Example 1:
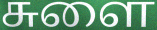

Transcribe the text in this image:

சுளை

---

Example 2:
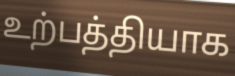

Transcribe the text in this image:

உற்பத்தியாக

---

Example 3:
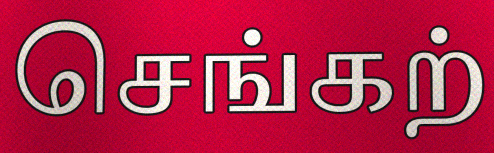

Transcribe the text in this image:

செங்கற்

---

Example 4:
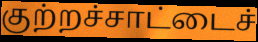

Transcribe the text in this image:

குற்றச்சாட்டைச்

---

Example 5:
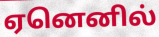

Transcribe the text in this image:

ஏனெனில்